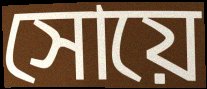
সোয়ে